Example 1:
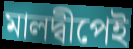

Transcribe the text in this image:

মালদ্বীপেই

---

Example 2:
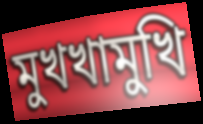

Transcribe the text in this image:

মুখখামুখি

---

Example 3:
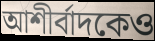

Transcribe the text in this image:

আশীর্বাদকেও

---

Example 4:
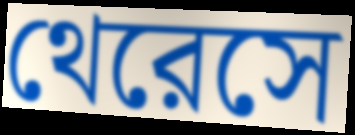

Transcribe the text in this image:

থেরেসে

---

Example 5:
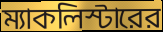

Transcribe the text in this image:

ম্যাকলিস্টারের